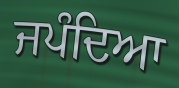
ਜਪੰਦਿਆ